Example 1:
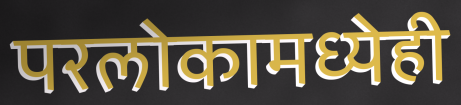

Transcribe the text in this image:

परलोकामध्येही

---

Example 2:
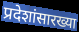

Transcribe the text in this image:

प्रदेशांसारख्या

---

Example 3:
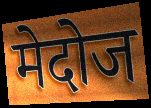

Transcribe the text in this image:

मेदोज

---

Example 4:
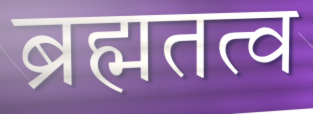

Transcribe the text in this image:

ब्रह्मतत्व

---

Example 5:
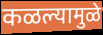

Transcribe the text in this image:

कळल्यामुळे